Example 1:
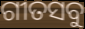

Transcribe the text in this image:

ଗୀତସବୁ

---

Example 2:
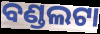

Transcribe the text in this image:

ବଣ୍ଡଲଟା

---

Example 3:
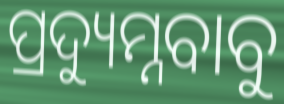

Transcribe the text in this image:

ପ୍ରଦ୍ୟୁମ୍ନବାବୁ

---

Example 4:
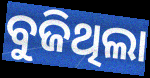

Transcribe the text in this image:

ବୁଜିଥିଲା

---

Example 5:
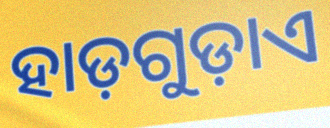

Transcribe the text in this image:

ହାଡ଼ଗୁଡ଼ାଏ